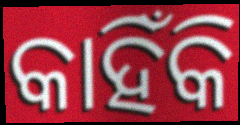
କାହିଁକି